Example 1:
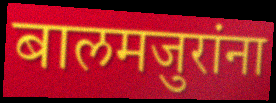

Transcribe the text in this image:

बालमजुरांना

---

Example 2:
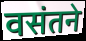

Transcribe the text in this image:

वसंतने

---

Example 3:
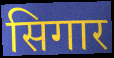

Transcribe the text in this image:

सिगार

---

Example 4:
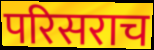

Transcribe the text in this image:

परिसराच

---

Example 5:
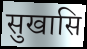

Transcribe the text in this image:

सुखासि